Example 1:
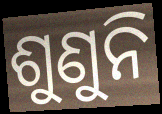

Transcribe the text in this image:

ଶୁଣୁନି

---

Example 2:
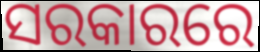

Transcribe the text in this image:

ସରକାରରେ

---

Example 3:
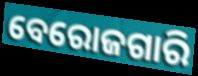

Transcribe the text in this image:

ବେରୋଜଗାରି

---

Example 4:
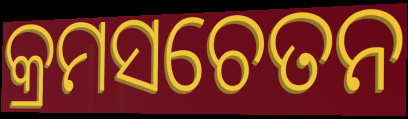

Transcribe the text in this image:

କ୍ରମସଚେତନ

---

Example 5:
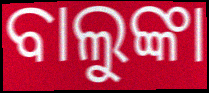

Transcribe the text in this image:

ବାଲୁଙ୍କା